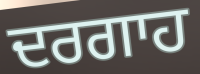
ਦਰਗਾਹ